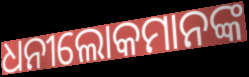
ଧନୀଲୋକମାନଙ୍କ